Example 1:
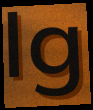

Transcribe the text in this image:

Ig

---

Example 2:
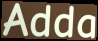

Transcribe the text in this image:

Adda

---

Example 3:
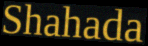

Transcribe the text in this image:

Shahada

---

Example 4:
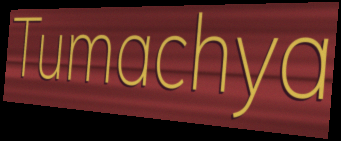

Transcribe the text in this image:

Tumachya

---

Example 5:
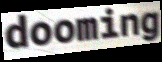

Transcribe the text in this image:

dooming